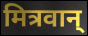
मित्रवान्